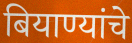
बियाण्यांचे